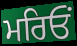
ਮਰਿਓਂ